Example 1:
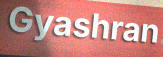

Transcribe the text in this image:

Gyashran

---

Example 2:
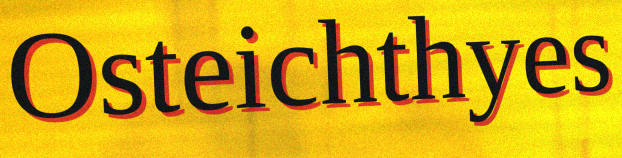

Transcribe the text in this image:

Osteichthyes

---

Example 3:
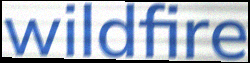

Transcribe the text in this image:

wildfire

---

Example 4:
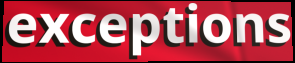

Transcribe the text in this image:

exceptions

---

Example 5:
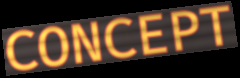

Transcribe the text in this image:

CONCEPT